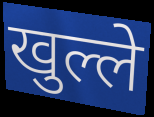
खुल्ले